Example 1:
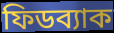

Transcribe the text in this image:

ফিডব্যাক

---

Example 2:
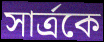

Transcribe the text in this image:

সার্ত্রকে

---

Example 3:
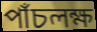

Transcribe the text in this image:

পাঁচলক্ষ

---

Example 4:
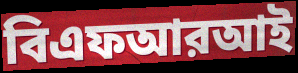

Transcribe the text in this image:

বিএফআরআই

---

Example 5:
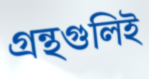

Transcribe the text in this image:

গ্রন্থগুলিই